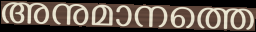
അനുമാനത്തെ